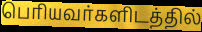
பெரியவர்களிடத்தில்